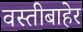
वस्तीबाहेर